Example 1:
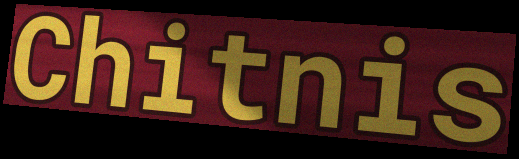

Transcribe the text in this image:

Chitnis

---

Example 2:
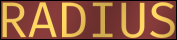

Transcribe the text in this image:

RADIUS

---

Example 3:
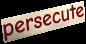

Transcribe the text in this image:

persecute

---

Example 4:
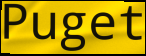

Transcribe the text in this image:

Puget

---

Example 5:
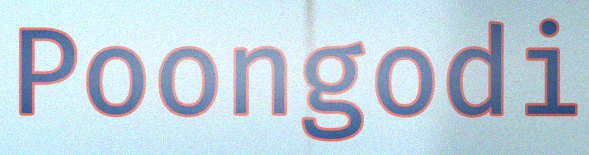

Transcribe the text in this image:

Poongodi